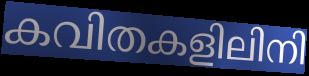
കവിതകളിലിനി